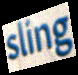
sling